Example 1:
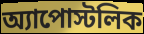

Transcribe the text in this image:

অ্যাপোস্টলিক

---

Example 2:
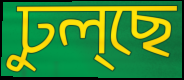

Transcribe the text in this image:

ঢুল্‌ছে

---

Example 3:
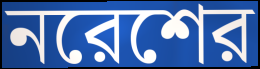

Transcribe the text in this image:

নরেশের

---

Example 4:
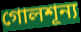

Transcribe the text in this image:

গোলশূন্য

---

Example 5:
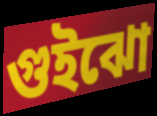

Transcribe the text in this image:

গুইঝো